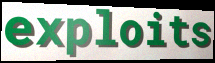
exploits